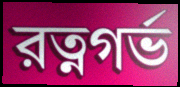
রত্নগর্ভ